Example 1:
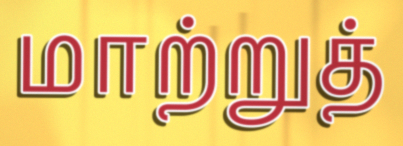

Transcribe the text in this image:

மாற்றுத்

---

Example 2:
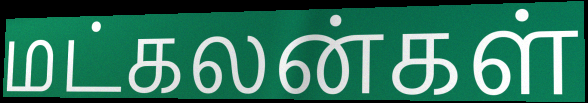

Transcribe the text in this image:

மட்கலன்கள்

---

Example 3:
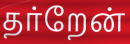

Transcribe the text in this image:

தர்றேன்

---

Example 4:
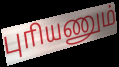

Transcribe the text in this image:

புரியணும்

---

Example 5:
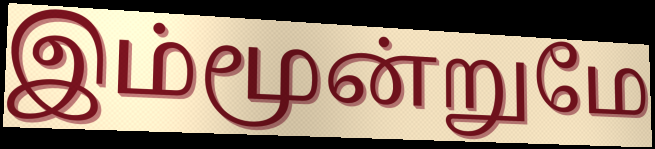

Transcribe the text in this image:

இம்மூன்றுமே